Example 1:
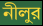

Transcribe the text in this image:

নীলুর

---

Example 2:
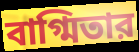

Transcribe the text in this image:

বাগ্মিতার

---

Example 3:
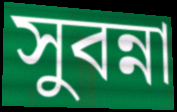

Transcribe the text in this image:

সুবন্না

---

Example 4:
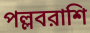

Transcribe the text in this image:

পল্লবরাশি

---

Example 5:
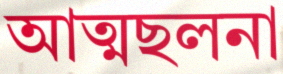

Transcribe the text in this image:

আত্মছলনা